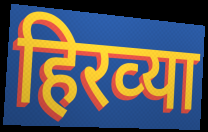
हिरव्‍या